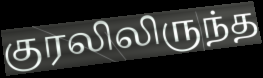
குரலிலிருந்த